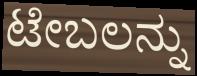
ಟೇಬಲನ್ನು